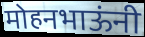
मोहनभाऊंनी